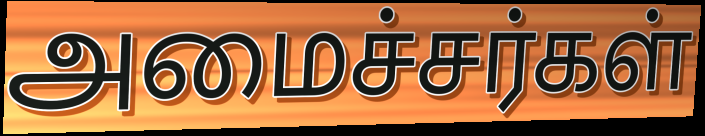
அமைச்சர்கள்